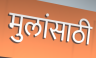
मुलांसाठी